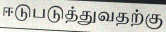
ஈடுபடுத்துவதற்கு